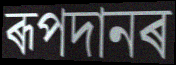
ৰূপদানৰ